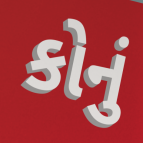
કોનું